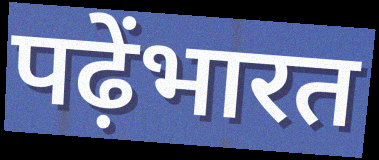
पढ़ेंभारत